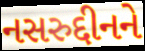
નસરુદ્દીનને